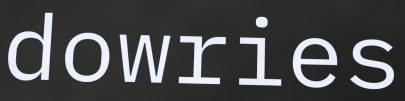
dowries